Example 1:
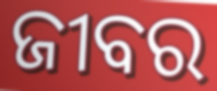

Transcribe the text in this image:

ଜୀବର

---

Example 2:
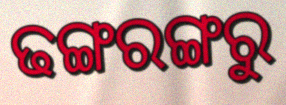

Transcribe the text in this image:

ଢଙ୍ଗରଙ୍ଗରୁ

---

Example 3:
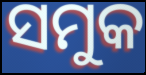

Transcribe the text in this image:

ସମୁକ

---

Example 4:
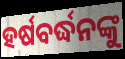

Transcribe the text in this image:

ହର୍ଷବର୍ଦ୍ଧନଙ୍କୁ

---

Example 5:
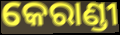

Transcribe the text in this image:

କେରାଣ୍ଡୀ